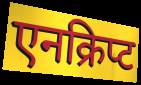
एनक्रिप्ट